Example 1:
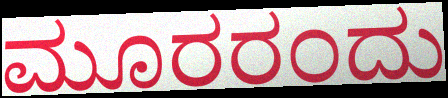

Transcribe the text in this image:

ಮೂರರಂದು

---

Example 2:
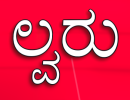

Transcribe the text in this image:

ಲ್ವರು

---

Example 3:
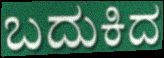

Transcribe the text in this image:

ಬದುಕಿದ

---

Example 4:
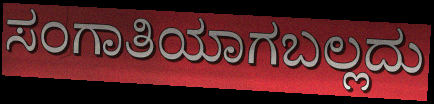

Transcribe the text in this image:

ಸಂಗಾತಿಯಾಗಬಲ್ಲದು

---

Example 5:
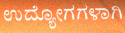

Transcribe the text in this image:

ಉದ್ಯೋಗಗಳಾಗಿ